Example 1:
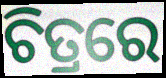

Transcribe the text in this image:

ଚିତ୍ରରେ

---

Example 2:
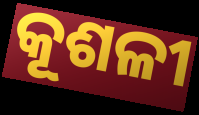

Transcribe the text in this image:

କୂଶଳୀ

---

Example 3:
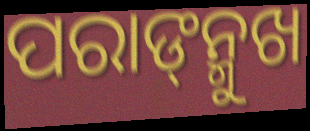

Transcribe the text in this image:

ପରାଙ୍‌ନ୍ମୁଖ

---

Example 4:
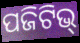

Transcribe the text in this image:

ପଜିଟିଭ୍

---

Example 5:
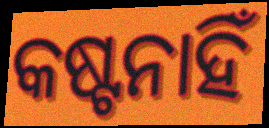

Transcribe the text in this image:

କଷ୍ଟନାହିଁ